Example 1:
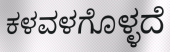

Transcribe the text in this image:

ಕಳವಳಗೊಳ್ಳದೆ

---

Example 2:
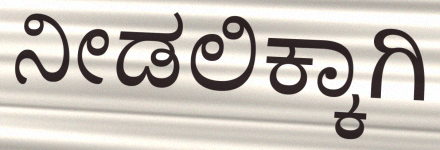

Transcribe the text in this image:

ನೀಡಲಿಕ್ಕಾಗಿ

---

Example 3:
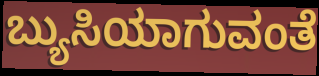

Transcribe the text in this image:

ಬ್ಯುಸಿಯಾಗುವಂತೆ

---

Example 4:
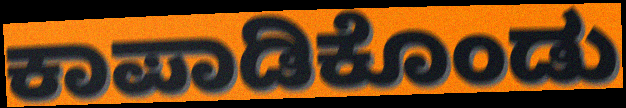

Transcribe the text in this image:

ಕಾಪಾಡಿಕೊಂಡು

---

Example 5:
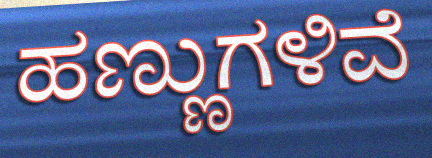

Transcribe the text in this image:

ಹಣ್ಣುಗಳಿವೆ